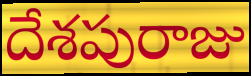
దేశపురాజు